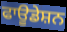
ਫਾਊਡੇਸ਼ਨ